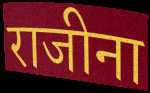
राजीना